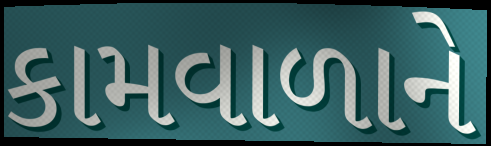
કામવાળાને